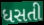
ધસતી